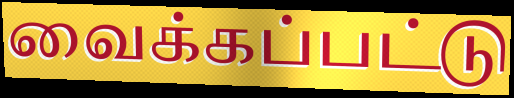
வைக்கப்பட்டு